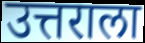
उत्तराला